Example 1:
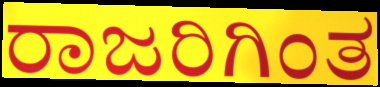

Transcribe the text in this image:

ರಾಜರಿಗಿಂತ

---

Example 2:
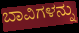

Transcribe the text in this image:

ಬಾವಿಗಳನ್ನು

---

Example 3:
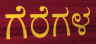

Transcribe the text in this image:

ಗೆರೆಗಳ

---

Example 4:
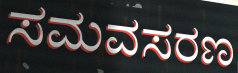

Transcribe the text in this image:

ಸಮವಸರಣ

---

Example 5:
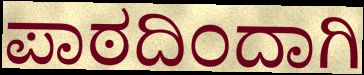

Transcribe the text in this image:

ಪಾಠದಿಂದಾಗಿ